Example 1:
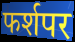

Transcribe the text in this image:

फर्शपर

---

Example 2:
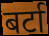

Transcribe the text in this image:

बर्टा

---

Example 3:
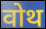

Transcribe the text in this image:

वोथ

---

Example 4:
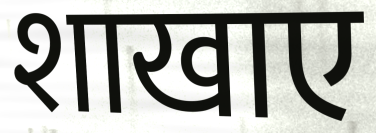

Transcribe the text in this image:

शाखाए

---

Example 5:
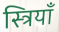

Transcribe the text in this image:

स्‍त्रियाँ